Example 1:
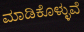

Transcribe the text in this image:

ಮಾಡಿಕೊಳ್ಳುವೆ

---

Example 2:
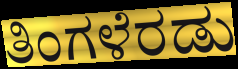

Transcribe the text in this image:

ತಿಂಗಳೆರಡು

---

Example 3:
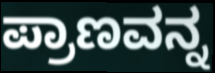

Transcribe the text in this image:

ಪ್ರಾಣವನ್ನ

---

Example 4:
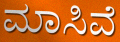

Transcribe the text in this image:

ಮಾಸಿವೆ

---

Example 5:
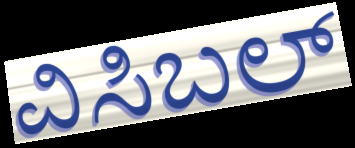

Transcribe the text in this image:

ವಿಸಿಬಲ್